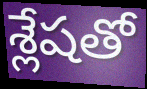
శ్లేషతో